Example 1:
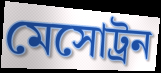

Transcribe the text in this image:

মেসোট্রন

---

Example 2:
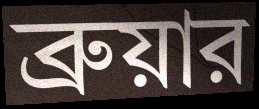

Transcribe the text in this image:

ব্রুয়ার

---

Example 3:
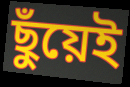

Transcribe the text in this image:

ছুঁয়েই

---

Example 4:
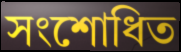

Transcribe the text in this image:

সংশোধিত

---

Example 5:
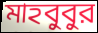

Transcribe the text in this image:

মাহবুবুর